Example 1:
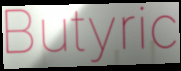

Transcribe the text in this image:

Butyric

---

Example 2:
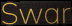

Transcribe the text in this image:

Swar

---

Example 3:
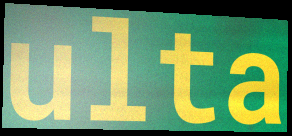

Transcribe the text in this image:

ulta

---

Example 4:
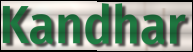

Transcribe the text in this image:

Kandhar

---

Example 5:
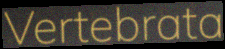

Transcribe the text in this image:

Vertebrata